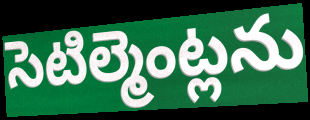
సెటిల్మెంట్లను